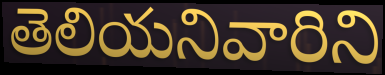
తెలియనివారిని